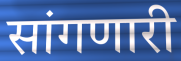
सांगणारी